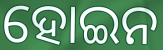
ହୋଇନ